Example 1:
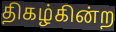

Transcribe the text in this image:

திகழ்கின்ற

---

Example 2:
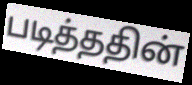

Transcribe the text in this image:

படித்ததின்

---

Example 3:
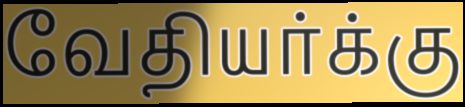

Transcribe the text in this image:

வேதியர்க்கு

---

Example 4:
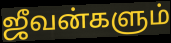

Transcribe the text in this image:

ஜீவன்களும்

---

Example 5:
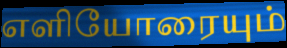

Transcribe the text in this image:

எளியோரையும்